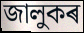
জালুকৰ